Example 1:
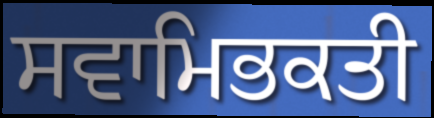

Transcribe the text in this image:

ਸਵਾਮਿਭਕਤੀ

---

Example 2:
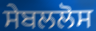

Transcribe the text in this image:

ਸੇਬਲਲੋਸ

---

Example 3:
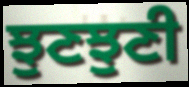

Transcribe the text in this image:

ਝੁਣਝੁਣੀ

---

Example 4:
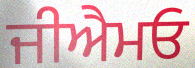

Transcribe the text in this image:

ਜੀਐਮਓ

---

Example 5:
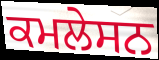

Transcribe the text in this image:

ਕਮਲੇਸਨ